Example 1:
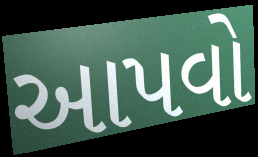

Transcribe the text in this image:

આપવો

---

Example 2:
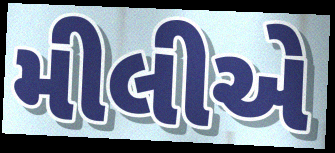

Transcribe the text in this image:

મીલીએ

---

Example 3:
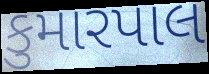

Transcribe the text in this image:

કુમારપાલ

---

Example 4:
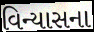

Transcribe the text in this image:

વિન્યાસના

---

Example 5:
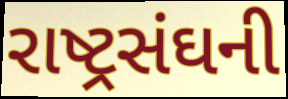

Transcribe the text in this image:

રાષ્ટ્રસંઘની